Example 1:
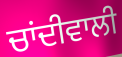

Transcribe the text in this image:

ਚਾਂਦੀਵਾਲੀ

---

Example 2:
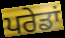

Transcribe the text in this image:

ਪਰੇਡਾਂ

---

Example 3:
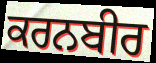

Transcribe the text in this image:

ਕਰਨਬੀਰ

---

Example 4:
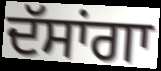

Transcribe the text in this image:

ਦੱਸਾਂਗਾ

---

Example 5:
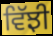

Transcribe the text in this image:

ਵਿੱਝੀ